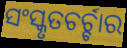
ସଂସ୍କୃତଚର୍ଚ୍ଚାର